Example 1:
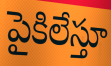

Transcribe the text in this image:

పైకిలేస్తూ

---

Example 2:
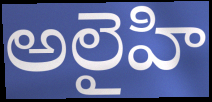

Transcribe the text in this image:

అలైహి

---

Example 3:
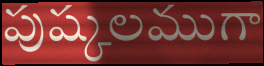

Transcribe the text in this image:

పుష్కలముగా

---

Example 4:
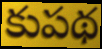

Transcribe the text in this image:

కుపథ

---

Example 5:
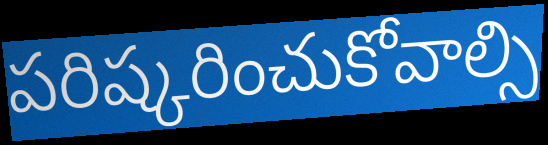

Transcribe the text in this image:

పరిష్కరించుకోవాల్సి